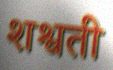
शश्वती